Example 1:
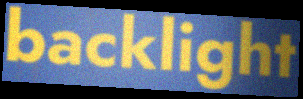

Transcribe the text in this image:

backlight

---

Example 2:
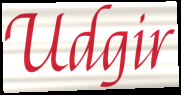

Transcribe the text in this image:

Udgir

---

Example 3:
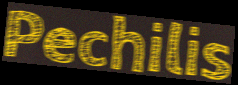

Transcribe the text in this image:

Pechilis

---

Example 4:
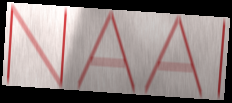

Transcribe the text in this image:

NAAI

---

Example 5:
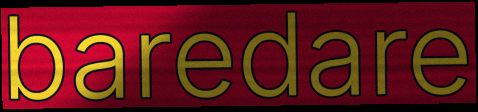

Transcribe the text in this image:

baredare